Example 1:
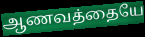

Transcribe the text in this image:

ஆணவத்தையே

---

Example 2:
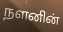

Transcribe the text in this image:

நளனின்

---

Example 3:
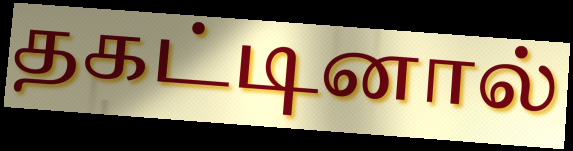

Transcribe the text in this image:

தகட்டினால்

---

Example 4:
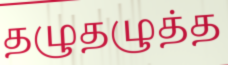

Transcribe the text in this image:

தழுதழுத்த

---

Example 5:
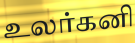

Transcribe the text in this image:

உலர்கனி